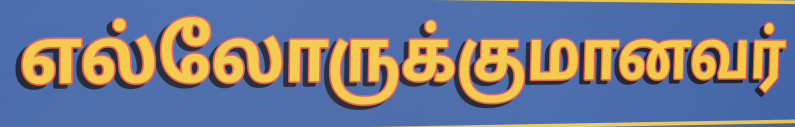
எல்லோருக்குமானவர்